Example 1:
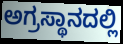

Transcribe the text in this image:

ಅಗ್ರಸ್ಥಾನದಲ್ಲಿ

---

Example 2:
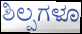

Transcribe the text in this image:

ಶಿಲ್ಪಗಳೂ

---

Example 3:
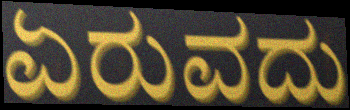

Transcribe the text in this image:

ಏರುವದು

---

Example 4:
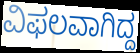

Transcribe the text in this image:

ವಿಫಲವಾಗಿದ್ದ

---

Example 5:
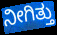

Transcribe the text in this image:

ನೀಗಿತ್ತು